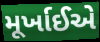
મૂર્ખાઈએ